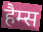
हैम्स